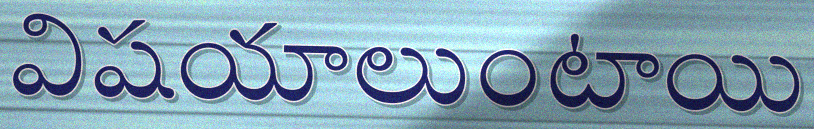
విషయాలుంటాయి